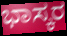
ಭಾಸ್ಕರ